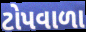
ટોપવાળા